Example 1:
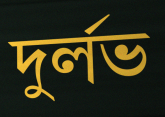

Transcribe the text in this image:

দুৰ্লভ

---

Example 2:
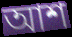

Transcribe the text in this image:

আশ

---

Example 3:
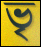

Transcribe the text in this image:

ভৃ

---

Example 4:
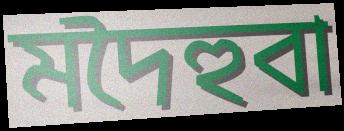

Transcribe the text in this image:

মদৈহুবা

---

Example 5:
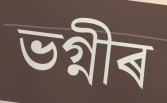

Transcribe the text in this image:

ভগ্নীৰ